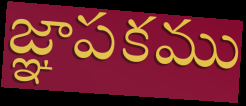
జ్ఞాపకము